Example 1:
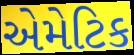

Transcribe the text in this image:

એમેટિક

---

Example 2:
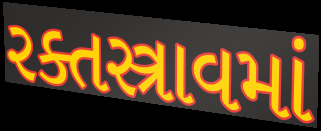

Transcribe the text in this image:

રક્તસ્ત્રાવમાં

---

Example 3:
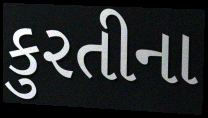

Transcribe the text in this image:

કુરતીના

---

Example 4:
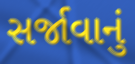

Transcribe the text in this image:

સર્જાવાનું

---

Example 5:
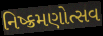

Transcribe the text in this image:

નિષ્ક્રમણોત્સવ